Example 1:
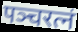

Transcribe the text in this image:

पञ्चरत्नं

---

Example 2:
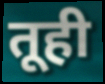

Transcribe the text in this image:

तूही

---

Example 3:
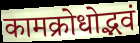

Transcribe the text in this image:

कामक्रोधोद्भवं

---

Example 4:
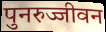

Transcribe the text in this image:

पुनरुज्जीवन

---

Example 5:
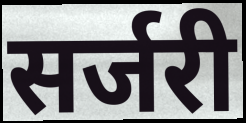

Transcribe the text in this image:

सर्जरी